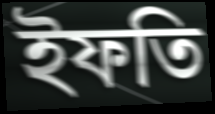
ইফতি